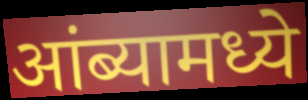
आंब्यामध्ये